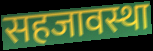
सहजावस्था